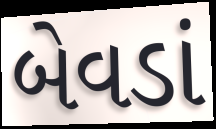
બેવડાં